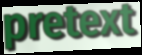
pretext